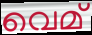
വെമ്